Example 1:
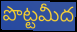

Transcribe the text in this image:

పొట్టమీద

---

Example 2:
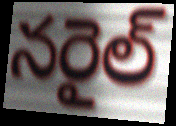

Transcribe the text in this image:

నరైల్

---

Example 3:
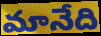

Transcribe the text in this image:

మానేది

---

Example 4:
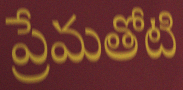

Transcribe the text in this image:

ప్రేమతోటి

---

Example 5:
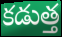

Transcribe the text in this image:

కడుత్త